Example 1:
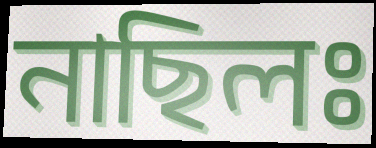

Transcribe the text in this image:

নাছিলঃ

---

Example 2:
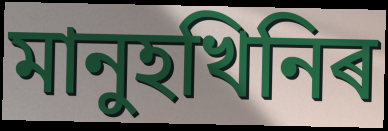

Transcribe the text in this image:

মানুহখিনিৰ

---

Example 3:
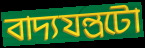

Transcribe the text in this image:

বাদ্যযন্ত্ৰটো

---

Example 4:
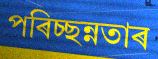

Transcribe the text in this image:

পৰিচ্ছন্নতাৰ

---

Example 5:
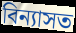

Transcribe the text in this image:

বিন্যাসত